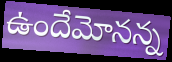
ఉందేమోనన్న